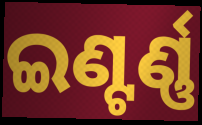
ଇଣ୍ଟର୍ଣ୍ଣ